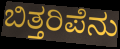
ಬಿತ್ತರಿಪೆನು